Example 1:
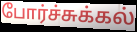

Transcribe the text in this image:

போர்ச்சுக்கல்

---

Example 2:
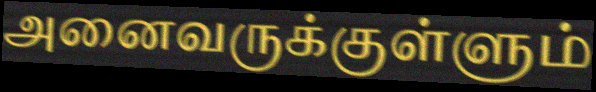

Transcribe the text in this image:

அனைவருக்குள்ளும்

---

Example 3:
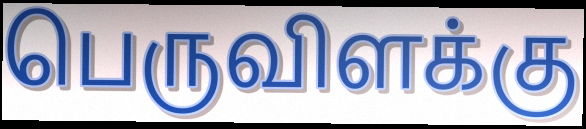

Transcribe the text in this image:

பெருவிளக்கு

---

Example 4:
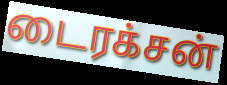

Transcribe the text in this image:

டைரக்சன்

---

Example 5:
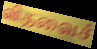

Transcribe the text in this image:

விதவைச்